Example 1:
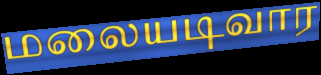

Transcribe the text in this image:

மலையடிவார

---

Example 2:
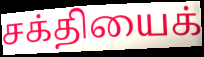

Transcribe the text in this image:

சக்தியைக்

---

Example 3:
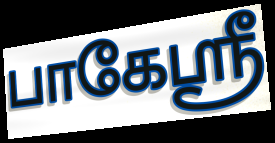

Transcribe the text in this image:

பாகேஸ்ரீ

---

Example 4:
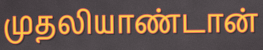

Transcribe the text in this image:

முதலியாண்டான்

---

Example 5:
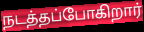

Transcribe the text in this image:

நடத்தப்போகிறார்